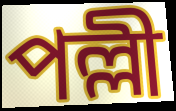
পল্লী